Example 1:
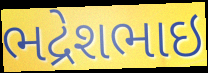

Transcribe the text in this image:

ભદ્રેશભાઇ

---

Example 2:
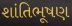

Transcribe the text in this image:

શાંતિભૂષણ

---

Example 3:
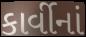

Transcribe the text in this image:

કાર્વીનાં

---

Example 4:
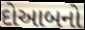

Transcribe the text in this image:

દોઆબનો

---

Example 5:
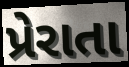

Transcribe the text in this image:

પ્રેરાતા